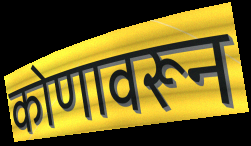
कोणावरून